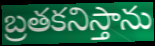
బ్రతకనిస్తాను